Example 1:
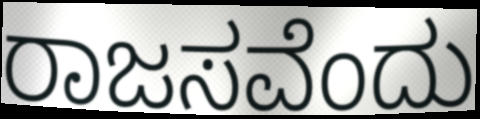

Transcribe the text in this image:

ರಾಜಸವೆಂದು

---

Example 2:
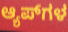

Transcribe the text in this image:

ಆ್ಯಪ್‌ಗಳ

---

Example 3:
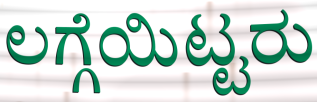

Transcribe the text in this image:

ಲಗ್ಗೆಯಿಟ್ಟರು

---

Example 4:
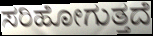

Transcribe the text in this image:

ಸರಿಹೋಗುತ್ತದೆ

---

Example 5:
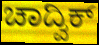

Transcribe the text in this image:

ಚಾದ್ವಿಕ್